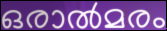
ഒരാൽമരം